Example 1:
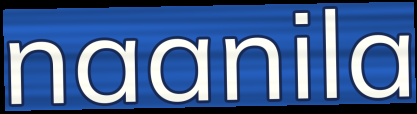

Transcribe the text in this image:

naanila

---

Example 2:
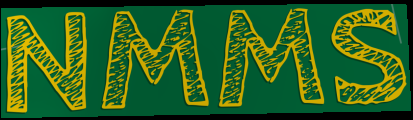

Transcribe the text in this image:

NMMS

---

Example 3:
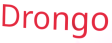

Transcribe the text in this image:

Drongo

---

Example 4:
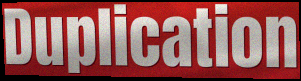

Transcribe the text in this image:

Duplication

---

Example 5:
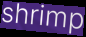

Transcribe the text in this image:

shrimp